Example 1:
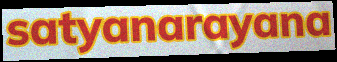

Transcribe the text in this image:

satyanarayana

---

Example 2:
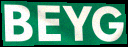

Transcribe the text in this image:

BEYG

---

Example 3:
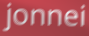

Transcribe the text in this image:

jonnei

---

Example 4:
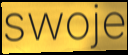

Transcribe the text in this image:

swoje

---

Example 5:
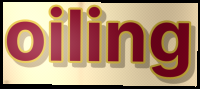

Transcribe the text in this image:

oiling